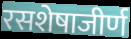
रसशेषाजीर्ण